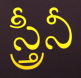
స్త్రీనీ